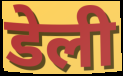
डेली